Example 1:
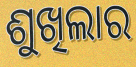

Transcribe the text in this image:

ଶୁଖିଲାର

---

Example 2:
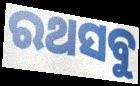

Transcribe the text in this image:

ରଥସବୁ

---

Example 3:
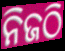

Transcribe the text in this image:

ନିଜଠି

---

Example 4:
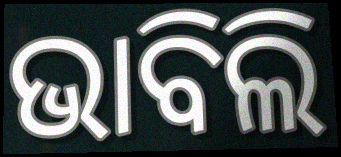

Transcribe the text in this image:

ଭାବିଲି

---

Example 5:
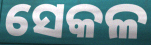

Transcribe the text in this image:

ସେକଳ